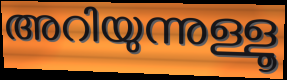
അറിയുന്നുള്ളൂ